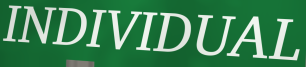
INDIVIDUAL